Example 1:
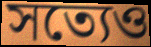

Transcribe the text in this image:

সত্যেও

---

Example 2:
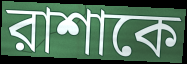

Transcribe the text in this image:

রাশাকে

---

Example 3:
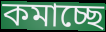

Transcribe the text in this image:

কমাচ্ছে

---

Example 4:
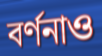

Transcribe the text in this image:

বর্ণনাও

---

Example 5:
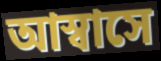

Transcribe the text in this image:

আস্বাসে